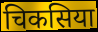
चिकसिया